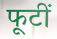
फूटीं